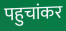
पहुचांकर